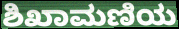
ಶಿಖಾಮಣಿಯ